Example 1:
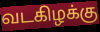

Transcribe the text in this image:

வடகிழக்கு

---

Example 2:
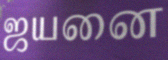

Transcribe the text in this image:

ஜயனை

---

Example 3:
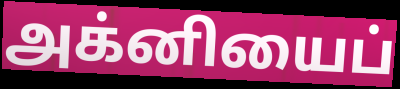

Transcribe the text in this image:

அக்னியைப்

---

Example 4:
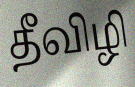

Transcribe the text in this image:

தீவிழி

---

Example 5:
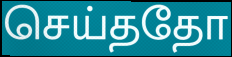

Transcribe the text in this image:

செய்ததோ